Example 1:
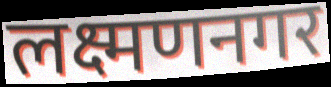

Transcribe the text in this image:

लक्ष्मणनगर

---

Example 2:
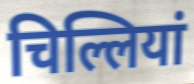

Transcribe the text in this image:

चिल्लियां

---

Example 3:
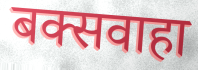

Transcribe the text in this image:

बक्सवाहा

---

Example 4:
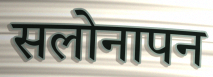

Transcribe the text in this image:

सलोनापन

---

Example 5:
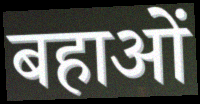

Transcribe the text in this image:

बहाओं